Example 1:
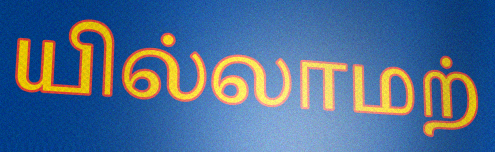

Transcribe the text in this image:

யில்லாமற்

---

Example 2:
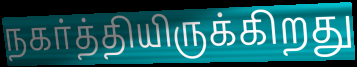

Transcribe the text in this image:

நகர்த்தியிருக்கிறது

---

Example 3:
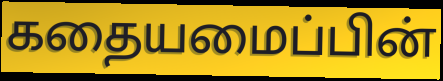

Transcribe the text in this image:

கதையமைப்பின்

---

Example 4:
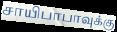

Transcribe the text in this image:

சாயிபாபாவுக்கு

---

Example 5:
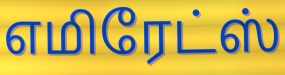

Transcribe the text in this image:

எமிரேட்ஸ்